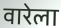
वारेला